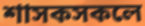
শাসকসকলে